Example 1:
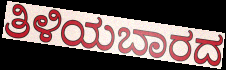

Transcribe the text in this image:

ತಿಳಿಯಬಾರದ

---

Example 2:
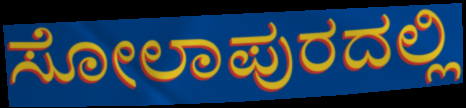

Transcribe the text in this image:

ಸೋಲಾಪುರದಲ್ಲಿ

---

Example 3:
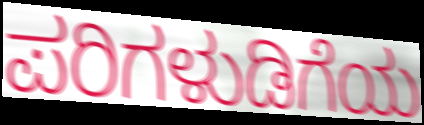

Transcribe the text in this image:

ಪರಿಗಳುಡಿಗೆಯ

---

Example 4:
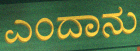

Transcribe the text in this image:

ಎಂದಾನು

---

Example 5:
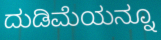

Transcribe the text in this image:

ದುಡಿಮೆಯನ್ನೂ